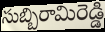
సుబ్బిరామిరెడ్డి